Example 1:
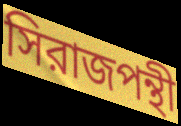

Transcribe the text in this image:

সিরাজপন্থী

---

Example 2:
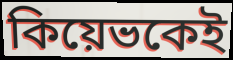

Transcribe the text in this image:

কিয়েভকেই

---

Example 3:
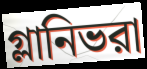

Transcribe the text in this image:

গ্লানিভরা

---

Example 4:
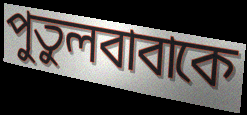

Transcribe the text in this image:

পুতুলবাবাকে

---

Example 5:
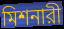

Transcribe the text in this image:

মিশনারী